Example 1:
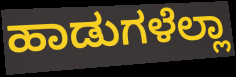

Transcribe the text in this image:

ಹಾಡುಗಳೆಲ್ಲಾ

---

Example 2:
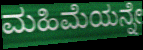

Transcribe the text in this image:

ಮಹಿಮೆಯನ್ನೇ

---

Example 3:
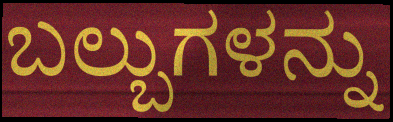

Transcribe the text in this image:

ಬಲ್ಬುಗಳನ್ನು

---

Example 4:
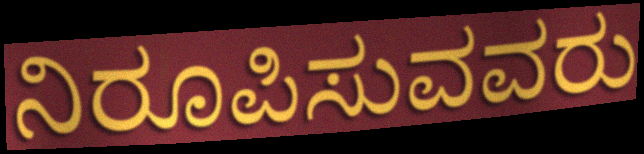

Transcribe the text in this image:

ನಿರೂಪಿಸುವವರು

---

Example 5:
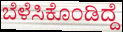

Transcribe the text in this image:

ಬೆಳೆಸಿಕೊಂಡಿದ್ದೆ